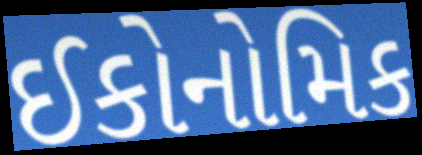
ઈકોનોમિક